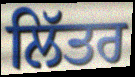
ਲਿੱਤਰ